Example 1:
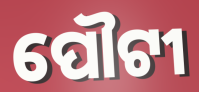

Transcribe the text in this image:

ପୌଟୀ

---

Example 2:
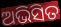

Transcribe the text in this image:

ଅଭିସିତ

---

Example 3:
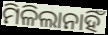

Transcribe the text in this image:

ମିଳିଲାନାହିଁ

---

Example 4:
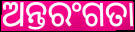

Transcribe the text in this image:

ଅନ୍ତରଂଗତା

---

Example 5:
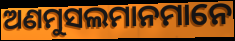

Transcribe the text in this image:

ଅଣମୁସଲମାନମାନେ